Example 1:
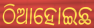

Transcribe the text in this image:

ଠିଆହୋଇଛ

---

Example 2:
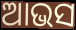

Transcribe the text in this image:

ଆଭସ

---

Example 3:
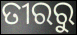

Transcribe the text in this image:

ତୀରରୁ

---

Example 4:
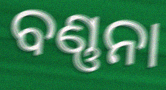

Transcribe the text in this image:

ବଣ୍ଣନା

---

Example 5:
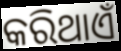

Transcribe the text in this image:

କରିଥାଏଁ